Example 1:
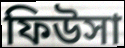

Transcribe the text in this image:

ফিউসা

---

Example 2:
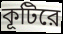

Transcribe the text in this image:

কূটিরে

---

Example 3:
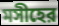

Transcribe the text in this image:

মসীহের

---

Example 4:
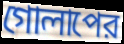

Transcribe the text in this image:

গোলাপের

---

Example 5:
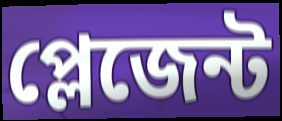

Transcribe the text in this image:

প্লেজেন্ট